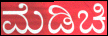
ಮೆಡಿಚಿ